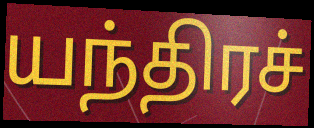
யந்திரச்